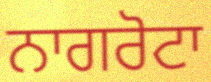
ਨਾਗਰੋਟਾ